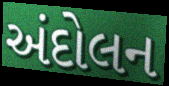
અંદોલન